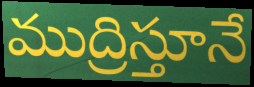
ముద్రిస్తూనే